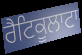
ਰੈਟਿਕੂਲਾਟਾ